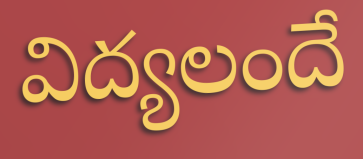
విద్యలందే